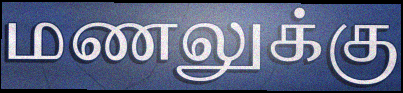
மணலுக்கு